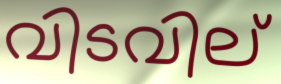
വിടവില്